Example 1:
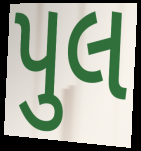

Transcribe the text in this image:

પુલ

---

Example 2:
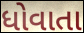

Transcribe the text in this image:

ધોવાતા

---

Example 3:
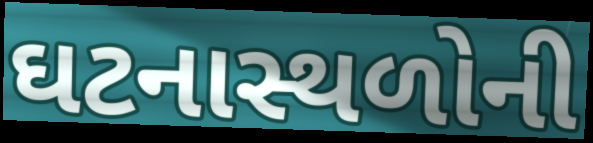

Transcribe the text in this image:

ઘટનાસ્થળોની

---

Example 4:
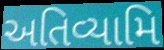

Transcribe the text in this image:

અતિવ્યામિ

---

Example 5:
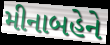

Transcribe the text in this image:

મીનાબહેને